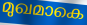
മുഖമാകെ